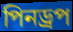
পিনড্রপ